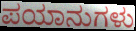
ಪಯಾನುಗಳು